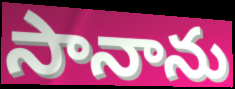
సానాను